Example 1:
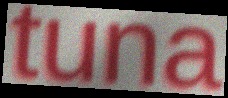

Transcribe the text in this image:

tuna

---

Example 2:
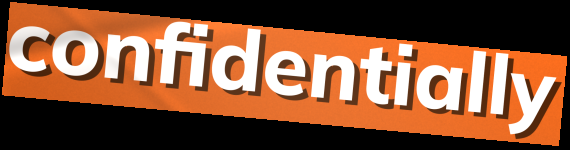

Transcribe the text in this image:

confidentially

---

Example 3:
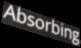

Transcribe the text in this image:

Absorbing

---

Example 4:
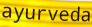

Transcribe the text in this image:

ayurveda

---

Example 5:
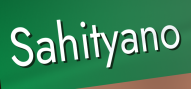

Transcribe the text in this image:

Sahityano